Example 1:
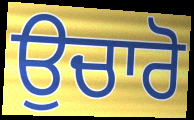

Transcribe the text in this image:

ਉਚਾਰੋ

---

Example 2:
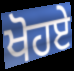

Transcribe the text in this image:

ਖੋਹਏ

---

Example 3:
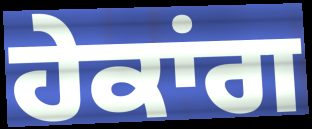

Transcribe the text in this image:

ਹੇਕਾਂਗ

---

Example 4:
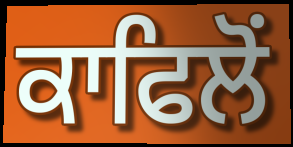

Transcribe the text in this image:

ਕਾਫਿਲੋਂ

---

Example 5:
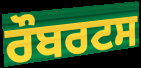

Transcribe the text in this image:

ਰੌਬਰਟਸ